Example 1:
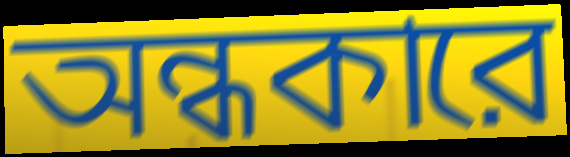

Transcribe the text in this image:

অন্ধকারে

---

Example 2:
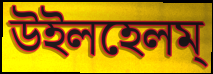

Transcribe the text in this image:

উইলহেলম্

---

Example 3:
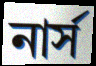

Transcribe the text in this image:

নার্স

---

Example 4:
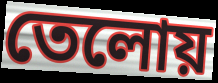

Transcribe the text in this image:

তেলোয়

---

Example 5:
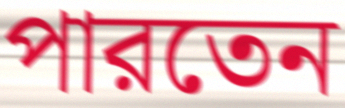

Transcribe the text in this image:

পারতেন